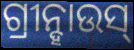
ଗ୍ରୀନ୍ହାଉସ୍